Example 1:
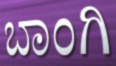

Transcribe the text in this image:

ಬಾಂಗಿ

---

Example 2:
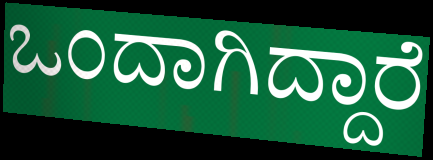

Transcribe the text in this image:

ಒಂದಾಗಿದ್ದಾರೆ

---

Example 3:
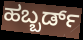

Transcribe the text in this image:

ಹಬ್ಬರ್ಡ್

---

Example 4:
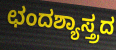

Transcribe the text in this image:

ಛಂದಶ್ಯಾಸ್ತ್ರದ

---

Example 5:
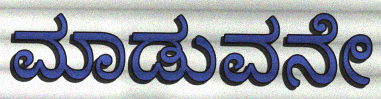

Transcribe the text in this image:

ಮಾಡುವನೇ